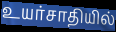
உயர்சாதியில்